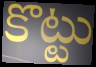
కొట్టు